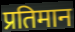
प्रतिमान